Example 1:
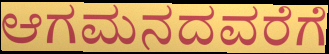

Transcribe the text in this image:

ಆಗಮನದವರೆಗೆ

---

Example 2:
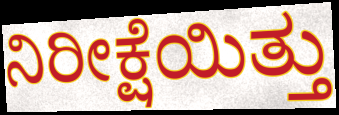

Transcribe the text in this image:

ನಿರೀಕ್ಷೆಯಿತ್ತು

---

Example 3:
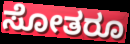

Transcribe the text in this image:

ಸೋತರೂ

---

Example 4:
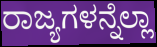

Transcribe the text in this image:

ರಾಜ್ಯಗಳನ್ನೆಲ್ಲಾ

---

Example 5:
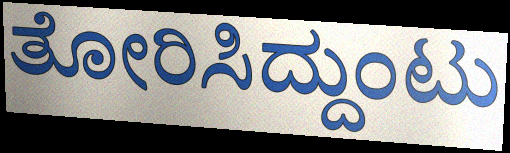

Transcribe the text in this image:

ತೋರಿಸಿದ್ದುಂಟು